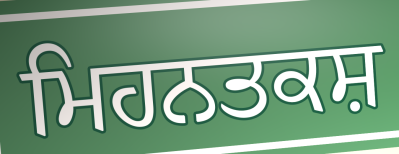
ਮਿਹਨਤਕਸ਼